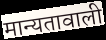
मान्यतावाली